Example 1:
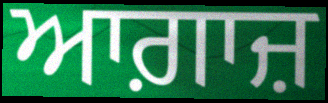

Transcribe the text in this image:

ਆਗ਼ਾਜ਼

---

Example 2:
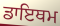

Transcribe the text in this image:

ਡਾਇਥਮ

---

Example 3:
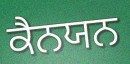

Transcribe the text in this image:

ਕੈਨਯਨ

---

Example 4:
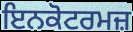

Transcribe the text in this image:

ਇਨਕੋਟਰਮਜ਼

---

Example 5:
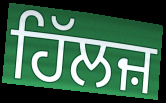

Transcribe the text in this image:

ਹਿੱਲਜ਼